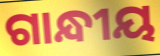
ଗାନ୍ଧୀୟ